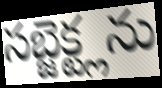
సబ్జెక్ట్లను